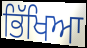
ਭਿੱਖਿਆ